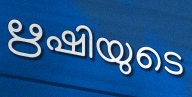
ഋഷിയുടെ